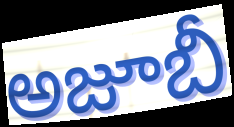
అజూబీ